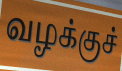
வழக்குச்